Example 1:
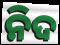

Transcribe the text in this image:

ନିଦ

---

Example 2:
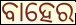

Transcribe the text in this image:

ବାହେର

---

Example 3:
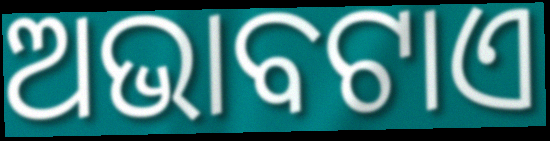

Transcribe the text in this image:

ଅଭାବଟାଏ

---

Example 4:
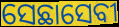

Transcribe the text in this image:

ସେଛାସେବୀ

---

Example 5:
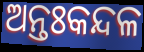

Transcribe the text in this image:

ଅନ୍ତଃକନ୍ଦଳ